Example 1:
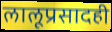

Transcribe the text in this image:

लालूप्रसादही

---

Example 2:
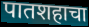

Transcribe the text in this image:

पातशहाचा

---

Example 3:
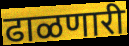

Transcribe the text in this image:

ढाळणारी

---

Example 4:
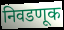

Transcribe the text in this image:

निवडणूक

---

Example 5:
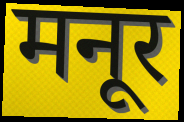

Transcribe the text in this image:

मनूर